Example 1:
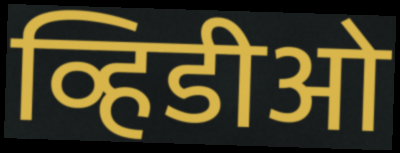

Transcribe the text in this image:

व्हिडीओ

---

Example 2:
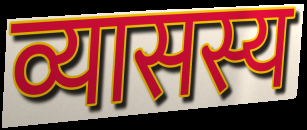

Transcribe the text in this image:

व्यासस्य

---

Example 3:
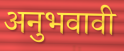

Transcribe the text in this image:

अनुभवावी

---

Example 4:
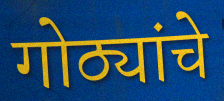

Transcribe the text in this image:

गोठ्यांचे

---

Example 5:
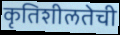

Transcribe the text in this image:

कृतिशीलतेची